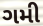
ગમી